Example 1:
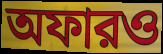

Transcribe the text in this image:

অফারও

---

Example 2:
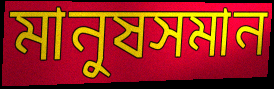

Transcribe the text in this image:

মানুষসমান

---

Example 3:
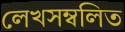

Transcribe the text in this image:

লেখসম্বলিত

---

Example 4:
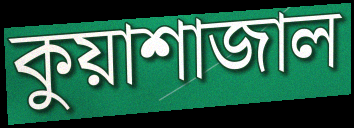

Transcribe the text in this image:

কুয়াশাজাল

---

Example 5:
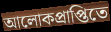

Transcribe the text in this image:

আলোকপ্রাপ্তিতে